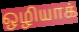
ஒழியாக்